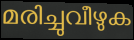
മരിച്ചുവീഴുക